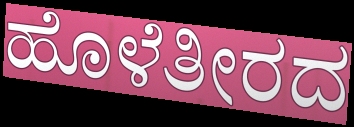
ಹೊಳೆತೀರದ